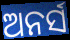
ଅନର୍ସ